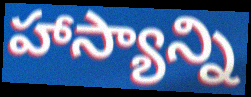
హాస్యాన్ని